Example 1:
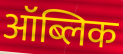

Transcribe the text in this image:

ऑब्लिक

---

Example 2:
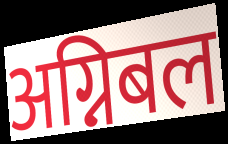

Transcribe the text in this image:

अग्निबल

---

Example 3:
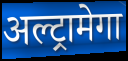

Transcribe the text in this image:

अल्ट्रामेगा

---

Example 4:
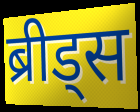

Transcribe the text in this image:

ब्रीड्स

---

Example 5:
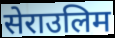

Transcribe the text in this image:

सेराउलिम